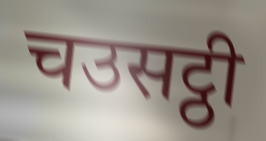
चउसट्ठी